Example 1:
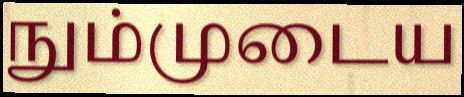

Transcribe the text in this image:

நும்முடைய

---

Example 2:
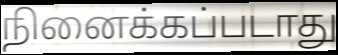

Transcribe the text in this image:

நினைக்கப்படாது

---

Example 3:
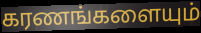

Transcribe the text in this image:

கரணங்களையும்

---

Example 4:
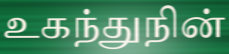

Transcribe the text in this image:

உகந்துநின்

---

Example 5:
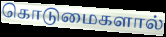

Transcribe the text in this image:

கொடுமைகளால்